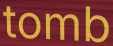
tomb